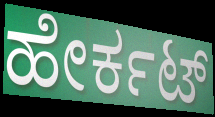
ಹೇರ್ಕಟ್